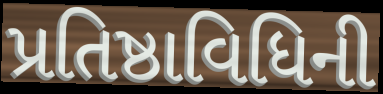
પ્રતિષ્ઠાવિધિની